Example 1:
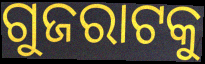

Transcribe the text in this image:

ଗୁଜରାଟକୁ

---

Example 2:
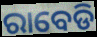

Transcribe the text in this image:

ରାବେଡି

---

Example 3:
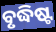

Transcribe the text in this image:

ବୃଦ୍ଧିଷ୍ଟ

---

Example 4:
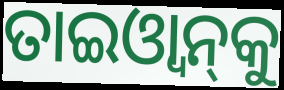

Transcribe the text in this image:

ତାଇଓ୍ବାନ୍‌କୁ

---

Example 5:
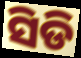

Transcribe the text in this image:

ସିଡି